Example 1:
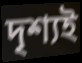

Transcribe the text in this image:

দৃশ্যই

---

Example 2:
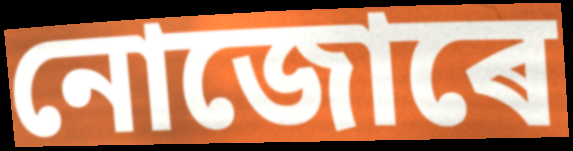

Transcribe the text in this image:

নোজোৰে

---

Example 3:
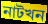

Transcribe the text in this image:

নাটখন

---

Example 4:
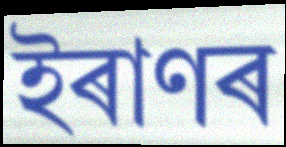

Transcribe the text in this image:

ইৰাণৰ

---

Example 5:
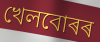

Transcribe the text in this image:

খেলবোৰৰ